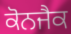
ਕੋਨਜੈਕ